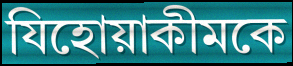
যিহোয়াকীমকে